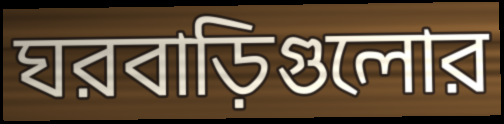
ঘরবাড়িগুলোর